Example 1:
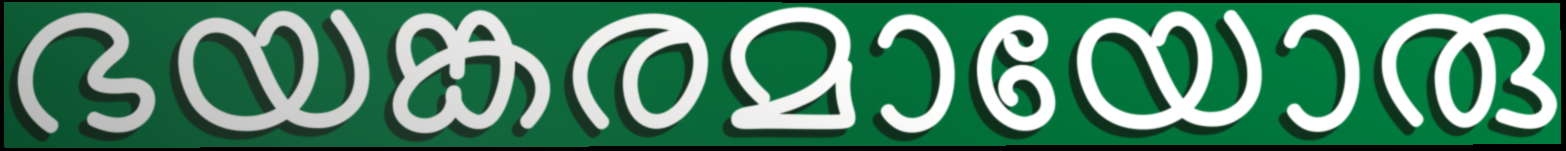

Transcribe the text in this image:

ഭയങ്കരമായോരു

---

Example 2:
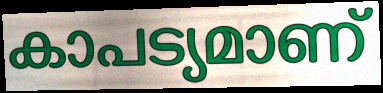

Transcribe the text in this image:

കാപട്യമാണ്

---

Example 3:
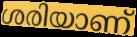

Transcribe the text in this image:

ശരിയാണ്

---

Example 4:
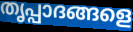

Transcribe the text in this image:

തൃപ്പാദങ്ങളെ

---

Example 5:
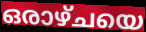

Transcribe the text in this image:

ഒരാഴ്ചയെ